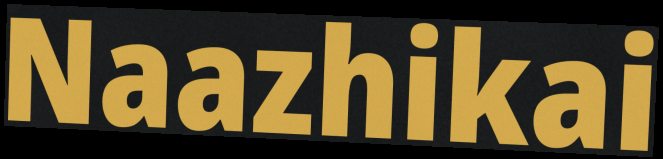
Naazhikai